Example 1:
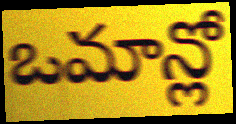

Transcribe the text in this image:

ఒమాన్లో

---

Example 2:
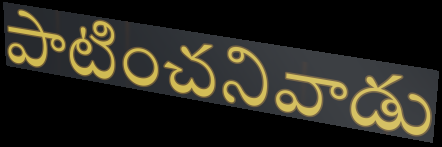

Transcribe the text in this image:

పాటించనివాడు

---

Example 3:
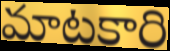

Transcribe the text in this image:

మాటకారి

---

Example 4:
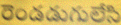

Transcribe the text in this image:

రెండడుగులేసి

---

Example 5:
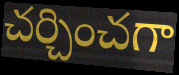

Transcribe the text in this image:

చర్చించగా